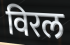
विरल